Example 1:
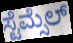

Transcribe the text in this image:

ಸ್ಟೆಮ್ಸೆಲ್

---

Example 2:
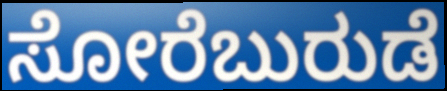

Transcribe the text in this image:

ಸೋರೆಬುರುಡೆ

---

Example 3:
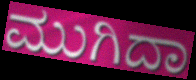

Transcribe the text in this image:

ಮುಗಿದಾ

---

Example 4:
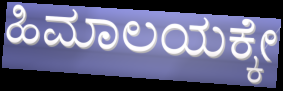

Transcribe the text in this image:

ಹಿಮಾಲಯಕ್ಕೇ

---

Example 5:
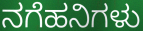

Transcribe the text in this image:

ನಗೆಹನಿಗಳು